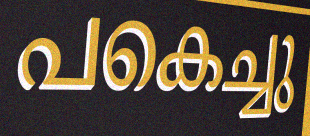
പകെച്ചു